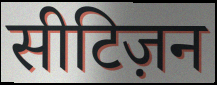
सीटिज़न